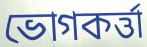
ভোগকর্ত্তা